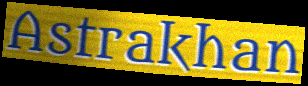
Astrakhan